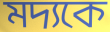
মদ্যকে